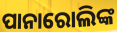
ପାନାରୋଲିଙ୍କ